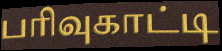
பரிவுகாட்டி